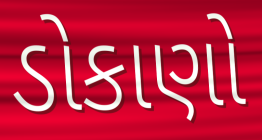
ડોકાણો